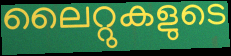
ലൈറ്റുകളുടെ